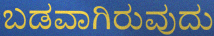
ಬಡವಾಗಿರುವುದು